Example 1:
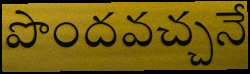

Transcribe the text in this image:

పొందవచ్చనే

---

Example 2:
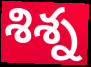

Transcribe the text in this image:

శిశ్న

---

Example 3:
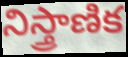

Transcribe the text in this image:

నిస్త్రాణిక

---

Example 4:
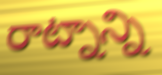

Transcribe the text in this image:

రాట్నాన్ని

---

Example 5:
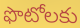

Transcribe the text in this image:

ఫొటోలకు